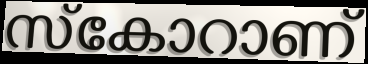
സ്‌കോറാണ്